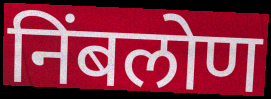
निंबलोण